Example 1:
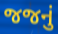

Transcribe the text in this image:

જજનું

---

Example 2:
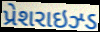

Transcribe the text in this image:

પ્રેશરાઇઝ્ડ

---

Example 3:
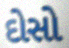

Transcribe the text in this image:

દોસો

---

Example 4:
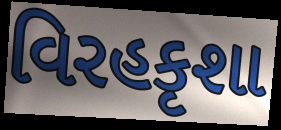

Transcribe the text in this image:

વિરહકૃશા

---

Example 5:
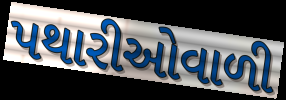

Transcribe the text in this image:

પથારીઓવાળી